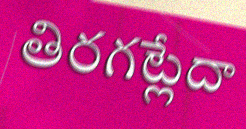
తిరగట్లేదా